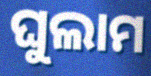
ଘୁଲାମ